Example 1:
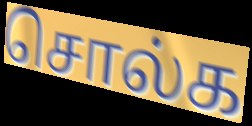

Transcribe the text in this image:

சொல்க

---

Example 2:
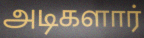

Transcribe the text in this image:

அடிகளார்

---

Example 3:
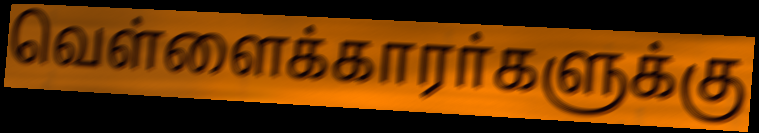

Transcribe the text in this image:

வெள்ளைக்காரர்களுக்கு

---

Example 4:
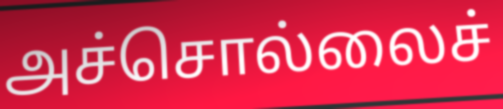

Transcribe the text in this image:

அச்சொல்லைச்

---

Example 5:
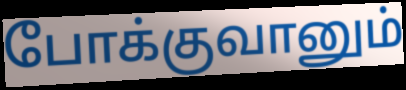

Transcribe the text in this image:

போக்குவானும்